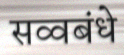
सव्वबंधे